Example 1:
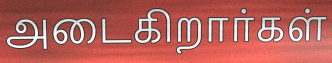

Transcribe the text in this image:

அடைகிறார்கள்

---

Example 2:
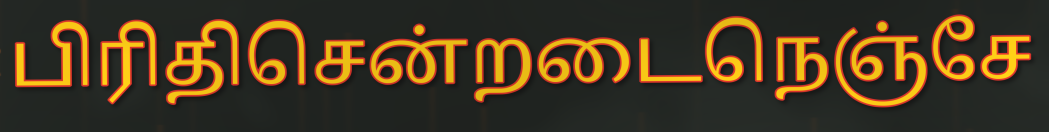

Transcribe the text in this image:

பிரிதிசென்றடைநெஞ்சே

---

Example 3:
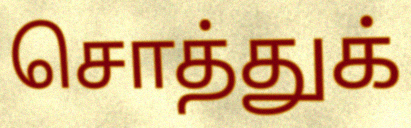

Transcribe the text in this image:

சொத்துக்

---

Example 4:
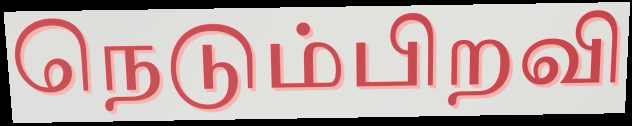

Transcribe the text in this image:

நெடும்பிறவி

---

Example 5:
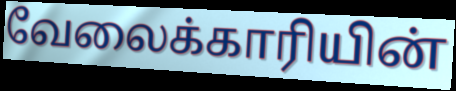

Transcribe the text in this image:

வேலைக்காரியின்